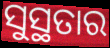
ସୁସ୍ଥତାର